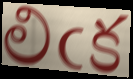
లిఁక